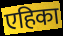
एहिका